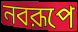
নবরূপে